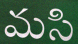
మసి